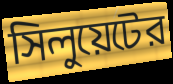
সিলুয়েটের